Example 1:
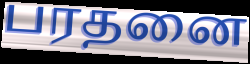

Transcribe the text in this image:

பரதனை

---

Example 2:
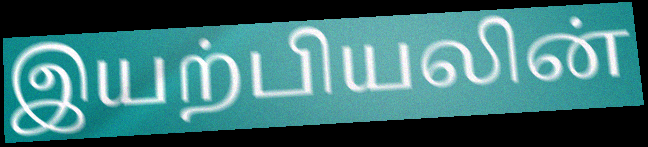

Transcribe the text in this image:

இயற்பியலின்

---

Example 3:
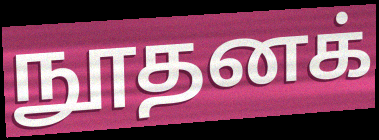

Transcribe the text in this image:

நூதனக்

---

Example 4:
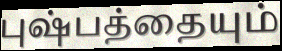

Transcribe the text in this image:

புஷ்பத்தையும்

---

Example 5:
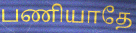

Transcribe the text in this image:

பணியாதே